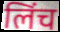
लिंच